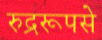
रुद्ररूपसे